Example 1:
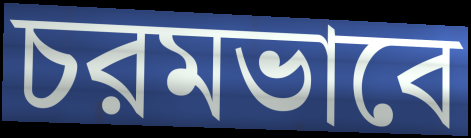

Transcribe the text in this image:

চরমভাবে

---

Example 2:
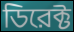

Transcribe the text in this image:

ডিরেক্ট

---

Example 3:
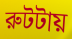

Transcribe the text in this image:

রুটটায়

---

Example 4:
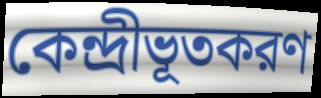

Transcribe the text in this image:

কেন্দ্রীভূতকরণ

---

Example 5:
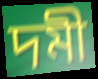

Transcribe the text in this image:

দমী